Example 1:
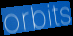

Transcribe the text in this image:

orbits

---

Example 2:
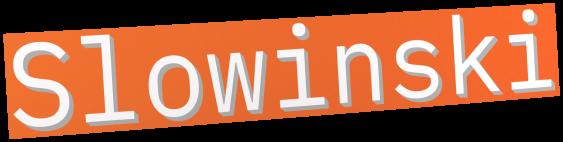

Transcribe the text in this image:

Slowinski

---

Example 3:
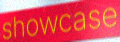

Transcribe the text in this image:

showcase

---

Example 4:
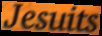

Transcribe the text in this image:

Jesuits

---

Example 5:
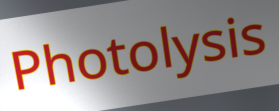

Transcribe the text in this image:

Photolysis